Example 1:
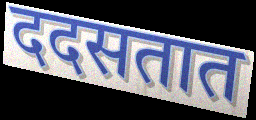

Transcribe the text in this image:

ददसतात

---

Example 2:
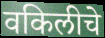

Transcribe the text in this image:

वकिलीचे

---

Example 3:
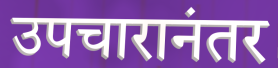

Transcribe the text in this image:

उपचारानंतर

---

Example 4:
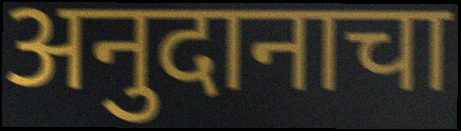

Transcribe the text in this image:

अनुदानाचा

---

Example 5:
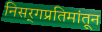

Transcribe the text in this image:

निसर्गप्रतिमांतून